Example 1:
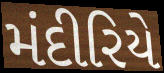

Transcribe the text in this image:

મંદીરિયે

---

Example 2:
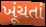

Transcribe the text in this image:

ખૂંચતાં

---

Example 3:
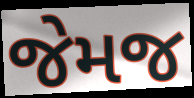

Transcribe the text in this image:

જેમજ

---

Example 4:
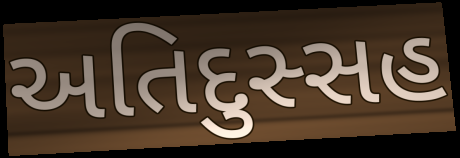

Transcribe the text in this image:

અતિદુસ્સહ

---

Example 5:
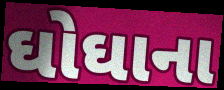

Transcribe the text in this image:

ઘોઘાના